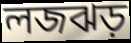
লজঝড়